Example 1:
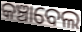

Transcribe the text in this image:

କଞ୍ଚାବେଲ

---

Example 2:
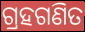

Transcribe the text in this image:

ଗ୍ରହଗଣିତ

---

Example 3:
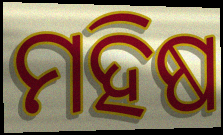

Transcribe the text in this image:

ମହିଷ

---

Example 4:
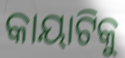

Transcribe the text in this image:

କାୟାଟିକୁ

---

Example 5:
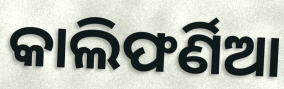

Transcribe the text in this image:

କାଲିଫର୍ଣିଆ